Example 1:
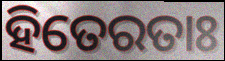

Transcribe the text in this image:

ହିତେରତାଃ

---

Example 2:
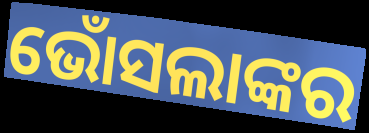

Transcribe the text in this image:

ଭୋଁସଲାଙ୍କର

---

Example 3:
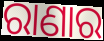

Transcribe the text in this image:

ରାଣାର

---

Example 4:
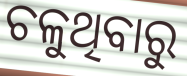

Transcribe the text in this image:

ଚଳୁଥିବାରୁ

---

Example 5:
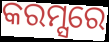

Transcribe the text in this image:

କରମ୍ସରେ